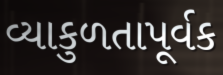
વ્યાકુળતાપૂર્વક